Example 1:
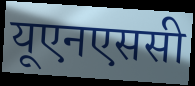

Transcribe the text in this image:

यूएनएससी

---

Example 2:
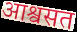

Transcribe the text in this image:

आश्वसत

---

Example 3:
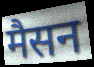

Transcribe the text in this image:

मैसन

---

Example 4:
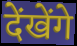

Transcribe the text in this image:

देंखेंगे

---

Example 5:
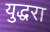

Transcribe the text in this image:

युद्धरा